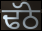
ਢੱਠੇ